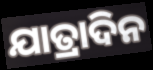
ଯାତ୍ରାଦିନ